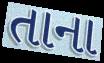
તાના